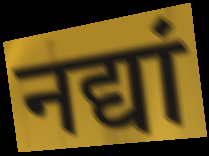
नद्यां